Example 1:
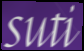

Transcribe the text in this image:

suti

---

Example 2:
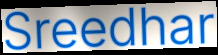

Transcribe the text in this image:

Sreedhar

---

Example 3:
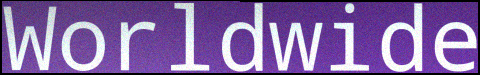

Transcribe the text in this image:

Worldwide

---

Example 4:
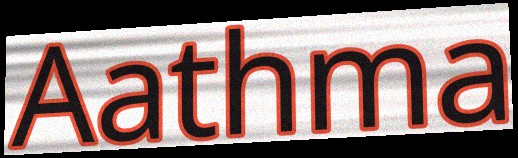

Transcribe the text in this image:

Aathma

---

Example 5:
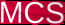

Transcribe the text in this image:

MCS